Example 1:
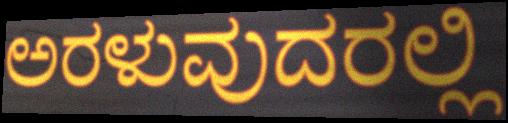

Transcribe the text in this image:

ಅರಳುವುದರಲ್ಲಿ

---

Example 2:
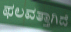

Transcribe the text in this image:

ಫಲವತ್ತಾಗಿದೆ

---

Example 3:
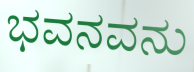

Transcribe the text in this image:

ಭವನವನು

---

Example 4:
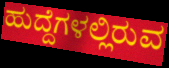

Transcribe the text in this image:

ಹುದ್ದೆಗಳಲ್ಲಿರುವ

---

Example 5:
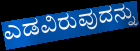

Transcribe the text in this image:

ಎಡವಿರುವುದನ್ನು